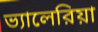
ভ্যালেরিয়া